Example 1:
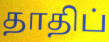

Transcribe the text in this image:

தாதிப்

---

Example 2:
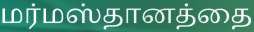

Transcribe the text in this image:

மர்மஸ்தானத்தை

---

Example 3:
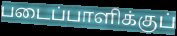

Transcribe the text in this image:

படைப்பாளிக்குப்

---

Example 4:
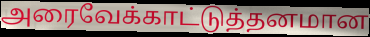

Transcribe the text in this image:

அரைவேக்காட்டுத்தனமான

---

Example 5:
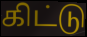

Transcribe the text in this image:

கிட்டு